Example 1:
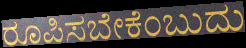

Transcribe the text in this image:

ರೂಪಿಸಬೇಕೆಂಬುದು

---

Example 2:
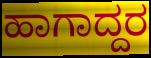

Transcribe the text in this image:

ಹಾಗಾದ್ದರ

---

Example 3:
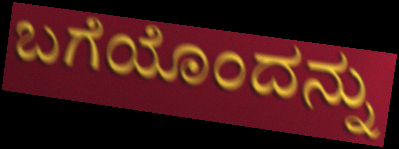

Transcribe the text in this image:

ಬಗೆಯೊಂದನ್ನು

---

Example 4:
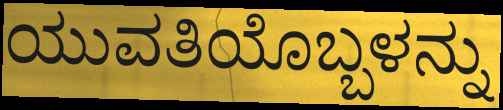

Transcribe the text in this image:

ಯುವತಿಯೊಬ್ಬಳನ್ನು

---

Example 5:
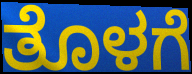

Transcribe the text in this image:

ತೊಳಗೆ